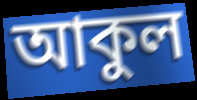
আকুল